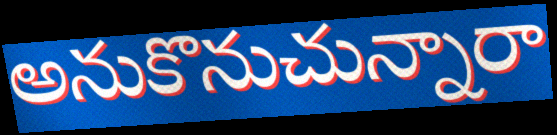
అనుకొనుచున్నారా